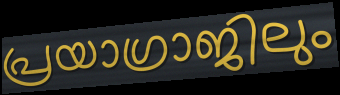
പ്രയാഗ്രാജിലും